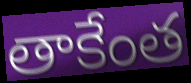
తాకేంత